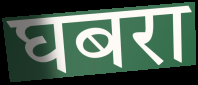
घबरा